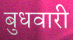
बुधवारी